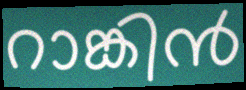
റാങ്കിൻ